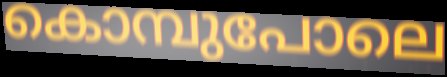
കൊമ്പുപോലെ